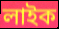
লাইক